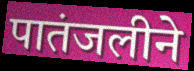
पातंजलीने